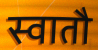
स्वातौ